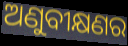
ଅଣୁବୀକ୍ଷଣର